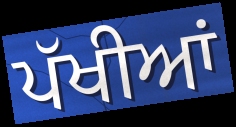
ਪੱਖੀਆਂ